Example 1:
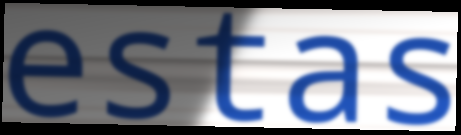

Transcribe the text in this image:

estas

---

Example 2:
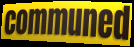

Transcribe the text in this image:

communed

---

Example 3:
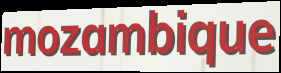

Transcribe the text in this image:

mozambique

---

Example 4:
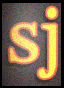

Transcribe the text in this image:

sj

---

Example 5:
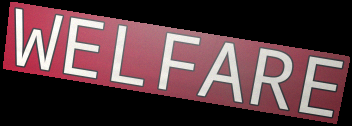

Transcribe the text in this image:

WELFARE